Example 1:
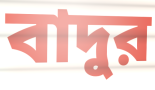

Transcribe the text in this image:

বাদুর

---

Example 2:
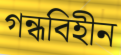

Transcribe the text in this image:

গন্ধবিহীন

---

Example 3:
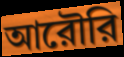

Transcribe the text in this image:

আরৌরি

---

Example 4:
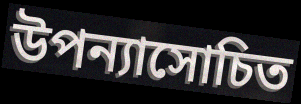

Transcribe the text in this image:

উপন্যাসোচিত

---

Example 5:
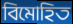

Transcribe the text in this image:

বিমোহিত